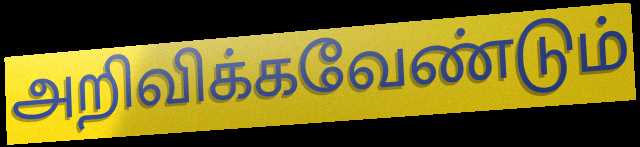
அறிவிக்கவேண்டும்